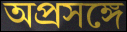
অপ্রসঙ্গে